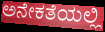
ಅನೇಕತೆಯಲ್ಲಿ